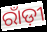
ରାଁଡ଼ୀ